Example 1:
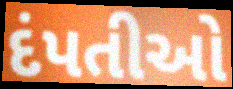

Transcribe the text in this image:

દંપતીઓ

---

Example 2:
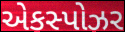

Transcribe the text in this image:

એકસ્પોઝર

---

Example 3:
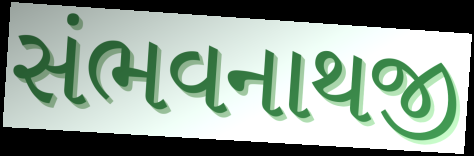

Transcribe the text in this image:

સંભવનાથજી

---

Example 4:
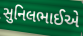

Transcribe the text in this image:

સુનિલભાઈએ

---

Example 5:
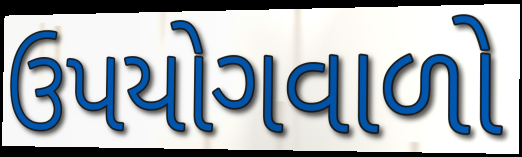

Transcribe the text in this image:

ઉપયોગવાળો